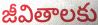
జీవితాలకు